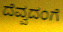
ದೆವ್ವದಂಗೆ